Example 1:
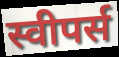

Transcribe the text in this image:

स्वीपर्स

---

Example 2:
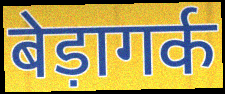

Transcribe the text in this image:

बेड़ागर्क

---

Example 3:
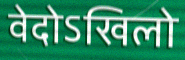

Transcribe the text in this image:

वेदोऽखिलो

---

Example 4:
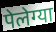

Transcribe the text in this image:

पेलेग्या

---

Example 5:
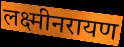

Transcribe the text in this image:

लक्ष्मीनरायण